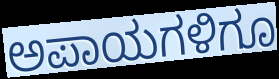
ಅಪಾಯಗಳಿಗೂ